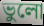
ভুলো